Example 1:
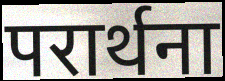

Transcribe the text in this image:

परार्थना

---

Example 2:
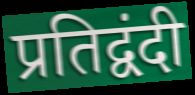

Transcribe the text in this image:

प्रतिद्वंदी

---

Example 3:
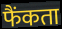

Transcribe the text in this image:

फैंकता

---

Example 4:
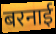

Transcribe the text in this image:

बरनाई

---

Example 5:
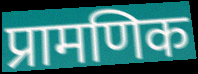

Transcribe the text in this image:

प्रामणिक